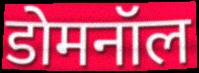
डोमनॉल